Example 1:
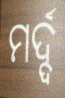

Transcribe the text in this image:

ମର୍ଦ୍ଦ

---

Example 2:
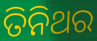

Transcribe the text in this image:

ତିନିଥର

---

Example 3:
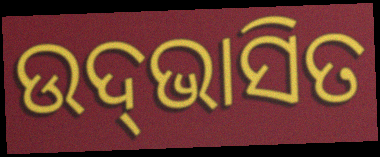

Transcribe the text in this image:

ଉଦ୍‍ଭାସିତ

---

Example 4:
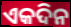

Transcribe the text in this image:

ଏକଦିନ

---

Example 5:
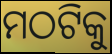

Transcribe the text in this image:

ମଠଟିକୁ